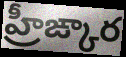
హ్రీఙ్కార